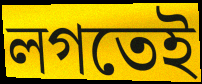
লগতেই